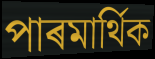
পাৰমাৰ্থিক